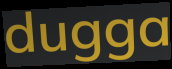
dugga